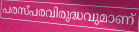
പരസ്പരവിരുദ്ധവുമാണ്